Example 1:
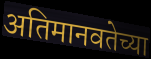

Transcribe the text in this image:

अतिमानवतेच्या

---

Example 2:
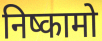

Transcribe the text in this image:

निष्कामो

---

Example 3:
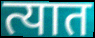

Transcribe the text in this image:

त्यात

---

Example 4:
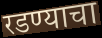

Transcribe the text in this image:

रडण्याचा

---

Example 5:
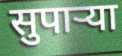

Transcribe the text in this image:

सुपार्‍या